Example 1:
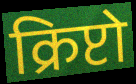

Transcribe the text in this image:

क्रिप्टो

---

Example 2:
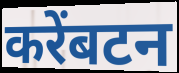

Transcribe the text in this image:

करेंबटन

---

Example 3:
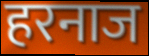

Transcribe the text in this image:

हरनाज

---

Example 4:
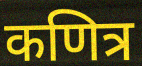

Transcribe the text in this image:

कणित्र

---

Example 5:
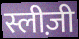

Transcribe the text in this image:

स्लीज़ी